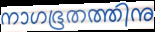
നാഗഭൂതത്തിനു